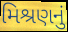
મિશ્રણનું